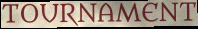
TOURNAMENT